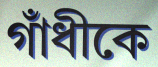
গাঁধীকে